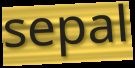
sepal